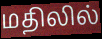
மதிலில்